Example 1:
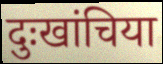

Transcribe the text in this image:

दुःखांचिया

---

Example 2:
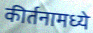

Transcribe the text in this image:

कीर्तनामध्ये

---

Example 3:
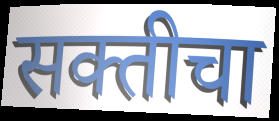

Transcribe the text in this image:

सक्तीचा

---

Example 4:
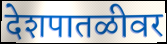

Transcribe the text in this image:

देशपातळीवर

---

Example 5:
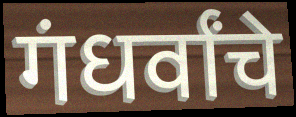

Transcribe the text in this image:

गंधर्वांचे